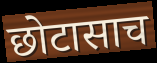
छोटासाच